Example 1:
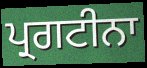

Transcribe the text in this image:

ਪ੍ਰਗਟੀਨਾ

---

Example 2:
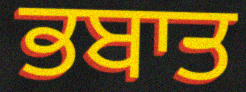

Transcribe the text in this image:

ਭਬਾਤ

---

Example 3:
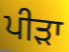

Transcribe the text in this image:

ਪੀੜਾ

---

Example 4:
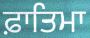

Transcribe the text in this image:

ਫ਼ਾਤਿਮਾ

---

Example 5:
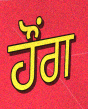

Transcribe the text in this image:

ਹੌਂਗ